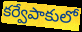
కర్వేపాకులో